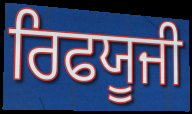
ਰਿਫਯੂਜੀ